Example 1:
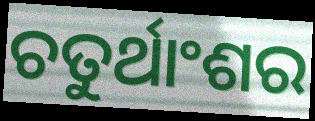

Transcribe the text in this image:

ଚତୁର୍ଥାଂଶର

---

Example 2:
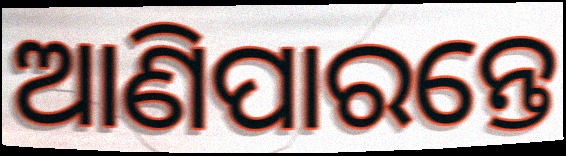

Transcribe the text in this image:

ଆଣିପାରନ୍ତେ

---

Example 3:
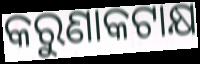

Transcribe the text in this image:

କରୁଣାକଟାକ୍ଷ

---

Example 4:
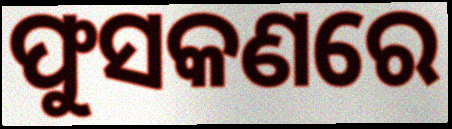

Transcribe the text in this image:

ଫୁସକଣରେ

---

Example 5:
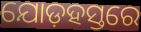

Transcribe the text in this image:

ଯୋଡ଼ହସ୍ତରେ